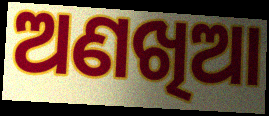
ଅଣଖିଆ